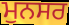
ਮੁਨਸਰ